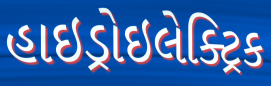
હાઇડ્રોઇલેક્ટ્રિક